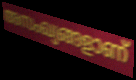
അസംഖ്യങ്ങളാണ്